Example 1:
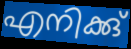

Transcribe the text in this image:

എനിക്കു്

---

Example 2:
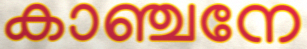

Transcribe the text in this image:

കാഞ്ചനേ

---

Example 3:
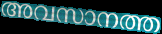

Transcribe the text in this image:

അവസാനത്ത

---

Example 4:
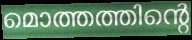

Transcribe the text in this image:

മൊത്തത്തിന്റെ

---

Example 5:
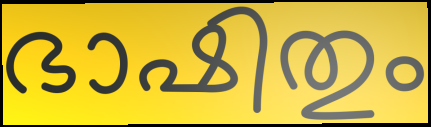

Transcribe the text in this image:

ഭാഷിതും